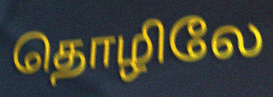
தொழிலே